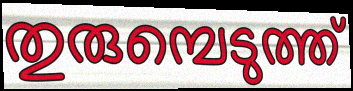
തുരുമ്പെടുത്ത്